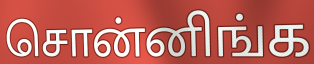
சொன்னிங்க